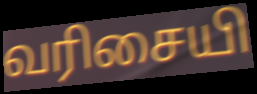
வரிசையி